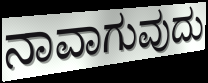
ನಾವಾಗುವುದು